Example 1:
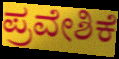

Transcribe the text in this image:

ಪ್ರವೇಶಿಕೆ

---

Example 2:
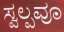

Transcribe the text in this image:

ಸ್ವಲ್ಪವೂ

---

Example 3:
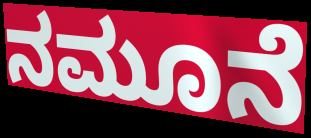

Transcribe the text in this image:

ನಮೂನೆ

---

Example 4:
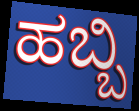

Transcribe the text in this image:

ಹಬ್ಬಿ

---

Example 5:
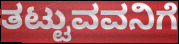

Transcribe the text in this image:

ತಟ್ಟುವವನಿಗೆ